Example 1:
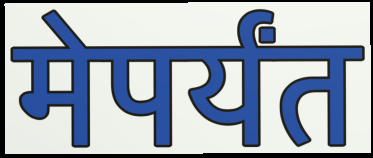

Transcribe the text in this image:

मेपर्यंत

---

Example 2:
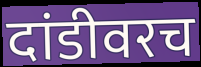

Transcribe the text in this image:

दांडीवरच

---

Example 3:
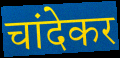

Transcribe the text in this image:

चांदेकर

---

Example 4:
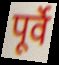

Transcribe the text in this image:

पूर्वे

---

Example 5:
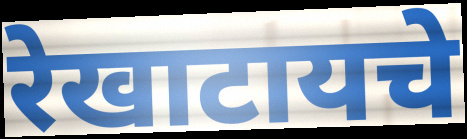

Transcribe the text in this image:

रेखाटायचे